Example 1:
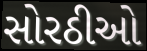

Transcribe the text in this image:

સોરઠીઓ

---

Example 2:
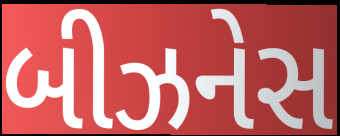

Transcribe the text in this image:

બીઝનેસ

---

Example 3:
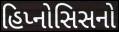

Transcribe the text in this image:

હિપ્નોસિસનો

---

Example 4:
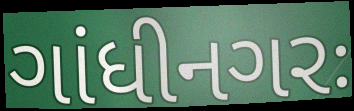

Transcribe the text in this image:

ગાંધીનગરઃ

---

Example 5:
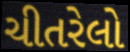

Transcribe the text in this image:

ચીતરેલો